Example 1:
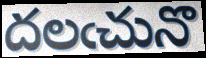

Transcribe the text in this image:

దలఁచునొ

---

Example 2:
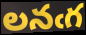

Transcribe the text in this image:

లనఁగ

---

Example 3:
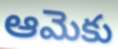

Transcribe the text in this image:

ఆమెకు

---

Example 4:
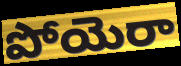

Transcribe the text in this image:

పోయెరా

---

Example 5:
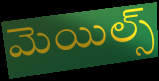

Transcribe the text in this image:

మెయిల్స్